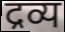
द्रव्य